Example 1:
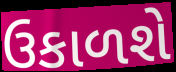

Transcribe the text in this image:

ઉકાળશે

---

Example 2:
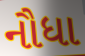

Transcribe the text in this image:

નૌધા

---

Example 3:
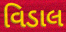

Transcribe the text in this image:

વિડાલ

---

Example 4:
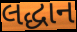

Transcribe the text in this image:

લદ્ધાન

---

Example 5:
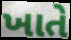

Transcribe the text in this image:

ખાતે